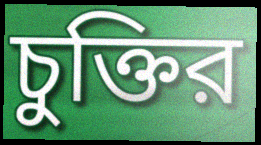
চুক্তির